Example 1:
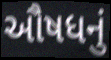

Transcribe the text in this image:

ઔષધનું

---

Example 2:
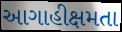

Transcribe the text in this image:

આગાહીક્ષમતા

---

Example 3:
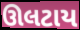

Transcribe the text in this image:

ઊલટાય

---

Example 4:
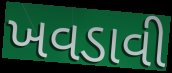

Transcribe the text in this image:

ખવડાવી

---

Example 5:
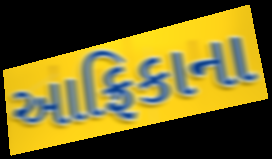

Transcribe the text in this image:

આફ્રિકાના